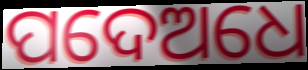
ପଦେଅଧେ